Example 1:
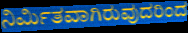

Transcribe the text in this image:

ನಿರ್ಮಿತವಾಗಿರುವುದರಿಂದ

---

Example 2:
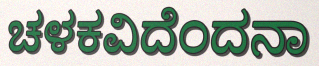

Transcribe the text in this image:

ಚಳಕವಿದೆಂದನಾ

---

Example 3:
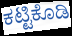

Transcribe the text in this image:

ಕಟ್ಟಿಕೊಡಿ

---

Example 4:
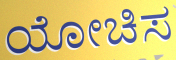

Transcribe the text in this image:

ಯೋಚಿಸ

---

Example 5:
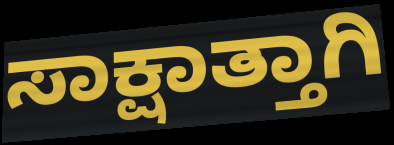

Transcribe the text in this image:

ಸಾಕ್ಷಾತ್ತಾಗಿ